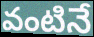
వంటినే